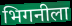
भिगनीला